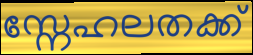
സ്നേഹലതക്ക്